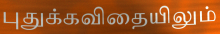
புதுக்கவிதையிலும்